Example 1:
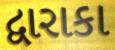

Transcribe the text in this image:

દ્વારાકા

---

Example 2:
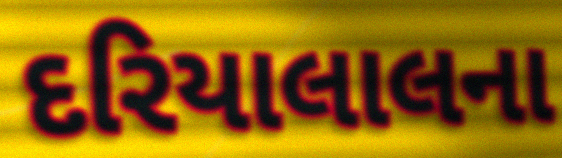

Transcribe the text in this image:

દરિયાલાલના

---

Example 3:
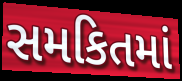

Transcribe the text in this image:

સમકિતમાં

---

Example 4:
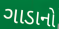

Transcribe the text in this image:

ગાડાનો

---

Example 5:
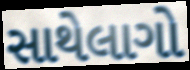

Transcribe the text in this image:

સાથેલાગો